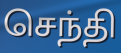
செந்தி